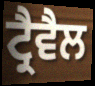
ਟ੍ਰੈਵੈਲ